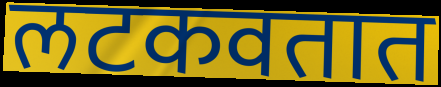
लटकवतात